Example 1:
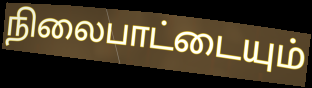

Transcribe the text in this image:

நிலைபாட்டையும்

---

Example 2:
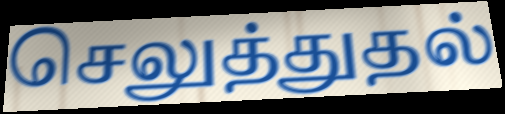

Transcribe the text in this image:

செலுத்துதல்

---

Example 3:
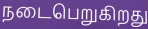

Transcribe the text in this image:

நடைபெறுகிறது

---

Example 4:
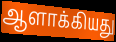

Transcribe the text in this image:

ஆளாக்கியது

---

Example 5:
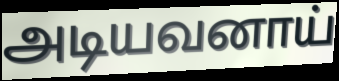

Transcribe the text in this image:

அடியவனாய்